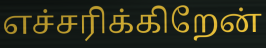
எச்சரிக்கிறேன்